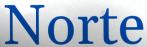
Norte